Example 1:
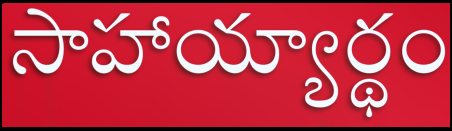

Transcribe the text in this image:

సాహాయ్యార్థం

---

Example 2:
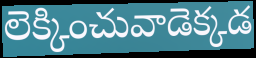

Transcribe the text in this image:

లెక్కించువాడెక్కడ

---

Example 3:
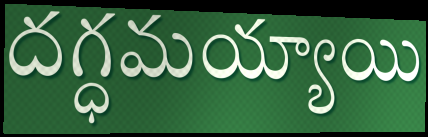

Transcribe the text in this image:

దగ్ధమయ్యాయి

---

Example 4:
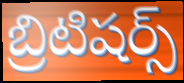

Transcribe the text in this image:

బ్రిటిషర్స్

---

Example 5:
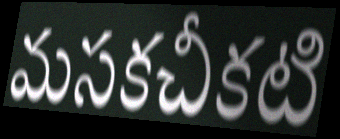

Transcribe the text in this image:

మసకచీకటి